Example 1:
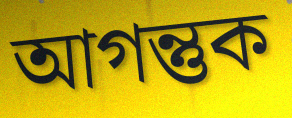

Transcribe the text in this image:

আগন্তুক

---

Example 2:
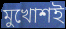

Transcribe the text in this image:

মুখোশই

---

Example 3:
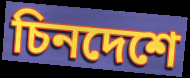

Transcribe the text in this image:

চিনদেশে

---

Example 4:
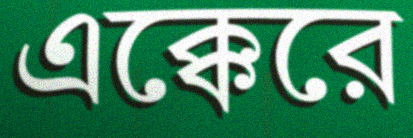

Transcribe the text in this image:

এক্কেরে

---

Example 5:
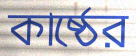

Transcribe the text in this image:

কাষ্ঠের